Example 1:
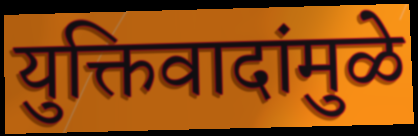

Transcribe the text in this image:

युक्तिवादांमुळे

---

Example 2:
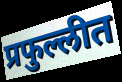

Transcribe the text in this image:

प्रफुल्लीत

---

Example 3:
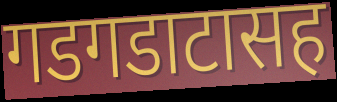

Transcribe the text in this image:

गडगडाटासह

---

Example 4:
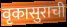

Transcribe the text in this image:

वृकासुराची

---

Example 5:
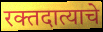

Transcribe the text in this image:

रक्तदात्याचे